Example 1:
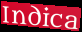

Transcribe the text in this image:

Indica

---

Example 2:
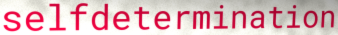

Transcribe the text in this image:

selfdetermination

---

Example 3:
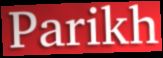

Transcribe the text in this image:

Parikh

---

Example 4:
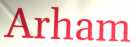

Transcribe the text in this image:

Arham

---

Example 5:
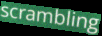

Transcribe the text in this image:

scrambling